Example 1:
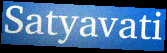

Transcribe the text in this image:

Satyavati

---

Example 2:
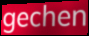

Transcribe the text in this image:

gechen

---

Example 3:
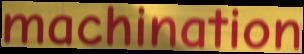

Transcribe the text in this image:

machination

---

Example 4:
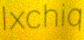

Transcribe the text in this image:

Ixchiq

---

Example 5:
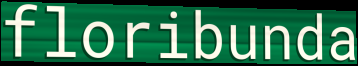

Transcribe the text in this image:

floribunda